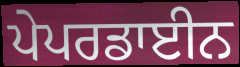
ਪੇਪਰਡਾਈਨ